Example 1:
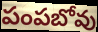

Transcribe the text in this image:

పంపబోవు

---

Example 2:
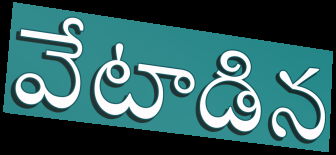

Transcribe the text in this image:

వేటాడిన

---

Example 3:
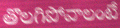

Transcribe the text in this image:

తొలగిపోవాలంటే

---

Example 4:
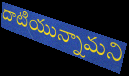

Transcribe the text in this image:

దాటియున్నామని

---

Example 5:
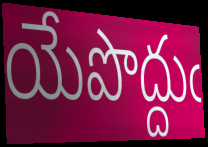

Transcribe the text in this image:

యేపొద్దుఁ